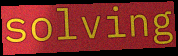
solving